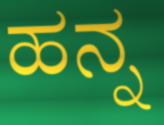
ಹನ್ನ